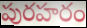
పురహరం